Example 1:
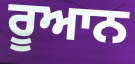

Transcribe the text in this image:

ਰੂਆਨ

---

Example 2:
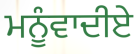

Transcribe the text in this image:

ਮਨੂੰਵਾਦੀਏ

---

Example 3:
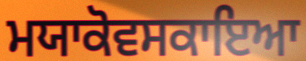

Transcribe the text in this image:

ਮਯਾਕੋਵਸਕਾਇਆ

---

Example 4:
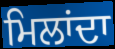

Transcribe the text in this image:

ਮਿਲਾਂਦਾ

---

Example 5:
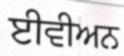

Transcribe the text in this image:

ਈਵੀਅਨ